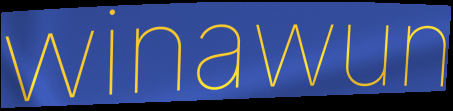
winawun